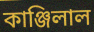
কাঞ্জিলাল